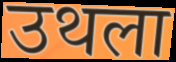
उथला